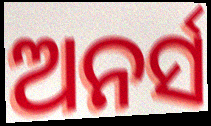
ଅନର୍ସ